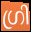
ഗ്രി